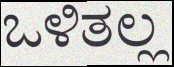
ಒಳಿತಲ್ಲ